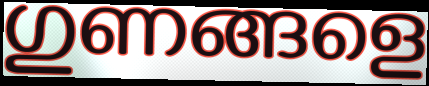
ഗുണങ്ങളെ